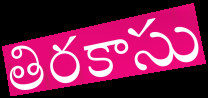
తిరకాసు